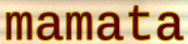
mamata